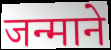
जन्माने